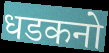
धडकनो